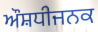
ਔਸ਼ਧੀਜਨਕ